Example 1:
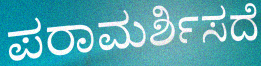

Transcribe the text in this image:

ಪರಾಮರ್ಶಿಸದೆ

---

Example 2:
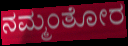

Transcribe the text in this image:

ನಮ್ಮಂತೋರ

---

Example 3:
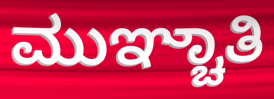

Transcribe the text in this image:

ಮುಞ್ಚಾತಿ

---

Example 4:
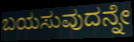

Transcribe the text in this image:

ಬಯಸುವುದನ್ನೇ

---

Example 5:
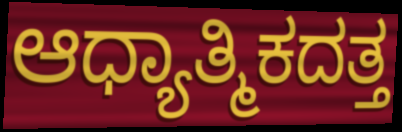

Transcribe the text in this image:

ಆಧ್ಯಾತ್ಮಿಕದತ್ತ